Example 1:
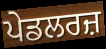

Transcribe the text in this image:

ਪੇਡਲਰਜ਼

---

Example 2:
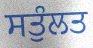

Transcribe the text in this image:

ਸਤੁੰਲਤ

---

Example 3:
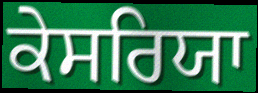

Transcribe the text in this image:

ਕੇਸਰਿਯਾ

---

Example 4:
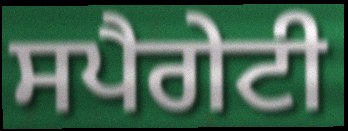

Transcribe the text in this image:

ਸਪੈਗੇਟੀ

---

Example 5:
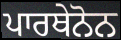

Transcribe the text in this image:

ਪਾਰਥੇਨੋਨ